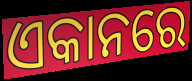
ଏକାନରେ